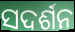
ସଦର୍ଶନ